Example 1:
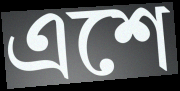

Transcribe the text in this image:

এশে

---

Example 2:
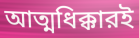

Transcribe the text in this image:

আত্মধিক্কারই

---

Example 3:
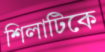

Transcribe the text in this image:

শিলাটিকে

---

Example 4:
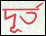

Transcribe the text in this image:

দূর্ত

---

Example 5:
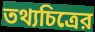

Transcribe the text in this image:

তথ্যচিত্রের